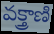
వక్త్రాణి